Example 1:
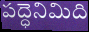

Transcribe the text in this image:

పద్ధెనిమిది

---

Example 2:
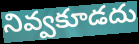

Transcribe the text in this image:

నివ్వకూడదు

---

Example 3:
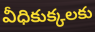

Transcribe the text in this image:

వీధికుక్కలకు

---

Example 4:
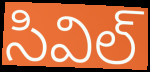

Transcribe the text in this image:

సివిల్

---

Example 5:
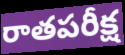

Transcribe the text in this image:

రాతపరీక్ష